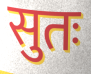
सुतः